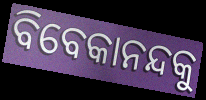
ବିବେକାନନ୍ଦକୁ